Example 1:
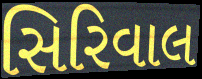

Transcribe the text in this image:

સિરિવાલ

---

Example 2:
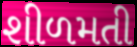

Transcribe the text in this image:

શીળમતી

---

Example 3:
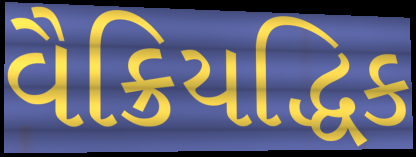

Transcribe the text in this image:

વૈક્રિયદ્ધિક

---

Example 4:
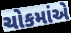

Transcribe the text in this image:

ચોકમાંએ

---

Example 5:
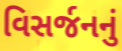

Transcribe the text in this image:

વિસર્જનનું